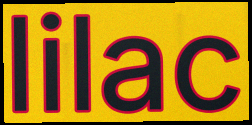
lilac